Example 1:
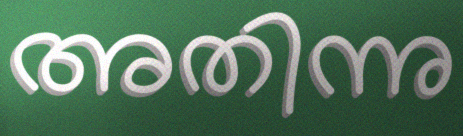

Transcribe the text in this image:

അതിന്നു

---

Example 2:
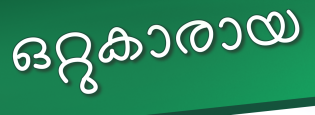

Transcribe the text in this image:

ഒറ്റുകാരായ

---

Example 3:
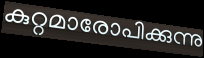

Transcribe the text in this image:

കുറ്റമാരോപിക്കുന്നു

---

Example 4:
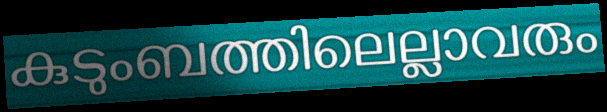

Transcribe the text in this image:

കുടുംബത്തിലെല്ലാവരും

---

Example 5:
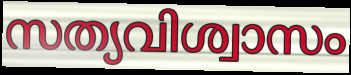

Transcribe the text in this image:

സത്യവിശ്വാസം